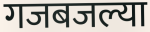
गजबजल्या